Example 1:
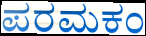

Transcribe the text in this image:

ಪರಮಕಂ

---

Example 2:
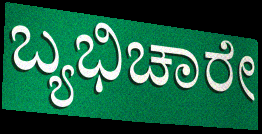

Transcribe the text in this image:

ಬ್ಯಭಿಚಾರೇ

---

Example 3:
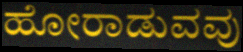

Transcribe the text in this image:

ಹೋರಾಡುವವು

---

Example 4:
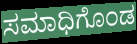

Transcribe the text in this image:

ಸಮಾಧಿಗೊಂಡ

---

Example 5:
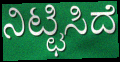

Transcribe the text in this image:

ನಿಟ್ಟಿಸಿದೆ